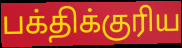
பக்திக்குரிய